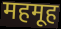
महमूह